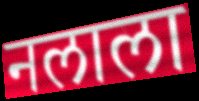
नलाला